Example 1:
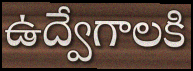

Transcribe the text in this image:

ఉద్వేగాలకి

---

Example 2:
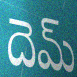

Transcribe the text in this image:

దెమ్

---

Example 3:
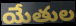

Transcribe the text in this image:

యేతుల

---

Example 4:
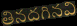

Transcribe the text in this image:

తినదగినవి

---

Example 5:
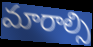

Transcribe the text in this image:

మారాల్సి